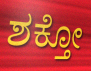
ಶಕ್ತೋ